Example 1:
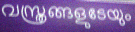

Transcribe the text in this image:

വസ്ത്രങ്ങളുടേയും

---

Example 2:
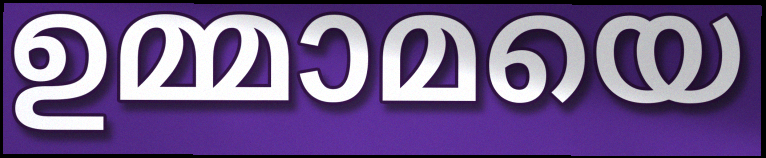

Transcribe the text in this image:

ഉമ്മാമയെ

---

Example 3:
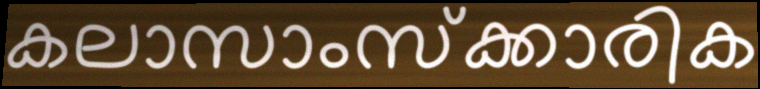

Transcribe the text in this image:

കലാസാംസ്ക്കാരിക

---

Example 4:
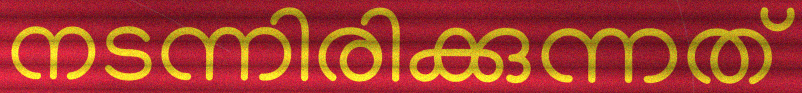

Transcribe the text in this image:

നടന്നിരിക്കുന്നത്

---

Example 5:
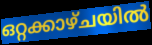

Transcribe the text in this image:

ഒറ്റക്കാഴ്ചയിൽ